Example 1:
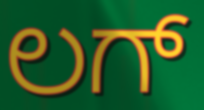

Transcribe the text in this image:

ಲಗ್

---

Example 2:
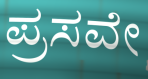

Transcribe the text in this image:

ಪ್ರಸವೇ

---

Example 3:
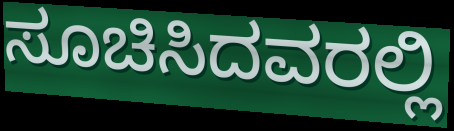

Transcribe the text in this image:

ಸೂಚಿಸಿದವರಲ್ಲಿ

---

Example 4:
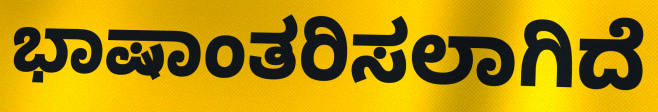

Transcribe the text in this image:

ಭಾಷಾಂತರಿಸಲಾಗಿದೆ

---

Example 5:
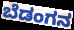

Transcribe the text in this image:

ಬೆಡಂಗನ